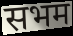
सभम